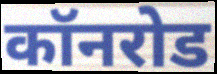
कॉनरोड